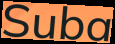
Suba